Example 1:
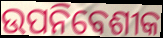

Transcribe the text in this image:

ଉପନିବେଶୀକ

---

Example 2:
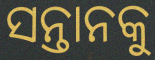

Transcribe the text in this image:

ସନ୍ତାନକୁ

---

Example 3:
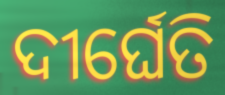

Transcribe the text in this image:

ଦୀର୍ଘେତି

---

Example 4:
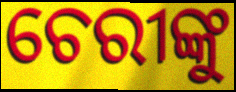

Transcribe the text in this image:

ଚେରୀଙ୍କୁ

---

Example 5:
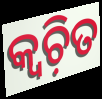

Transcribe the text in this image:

କ୍ୱଚ଼ିତ